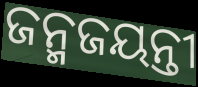
ଜନ୍ମଜୟନ୍ତୀ